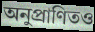
অনুপ্রাণিতও